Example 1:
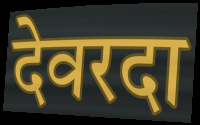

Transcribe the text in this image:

देवरदा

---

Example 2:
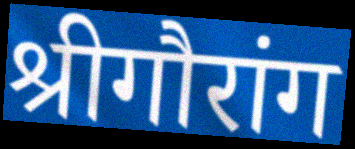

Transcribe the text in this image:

श्रीगौरांग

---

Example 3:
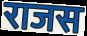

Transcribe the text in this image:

राजस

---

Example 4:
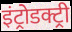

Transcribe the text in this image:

इंट्रोडक्ट्री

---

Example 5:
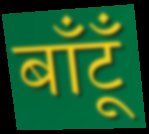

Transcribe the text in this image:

बाँटूँ